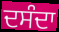
ਦਸੰਦਾ